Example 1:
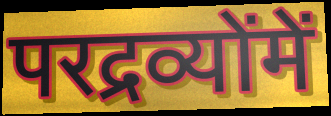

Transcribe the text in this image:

परद्रव्योंमें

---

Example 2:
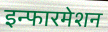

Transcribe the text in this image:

इन्फारमेशन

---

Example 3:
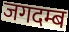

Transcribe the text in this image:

जगदम्ब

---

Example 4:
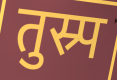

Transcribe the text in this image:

तुस्र्प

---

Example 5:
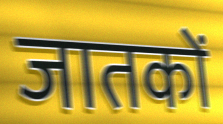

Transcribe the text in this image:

जातकों